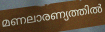
മണലാരണ്യത്തിൽ